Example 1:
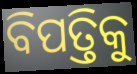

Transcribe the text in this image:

ବିପତ୍ତିକୁ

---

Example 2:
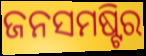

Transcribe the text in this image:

ଜନସମଷ୍ଟିର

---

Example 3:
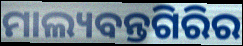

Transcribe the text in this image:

ମାଲ୍ୟବନ୍ତଗିରିର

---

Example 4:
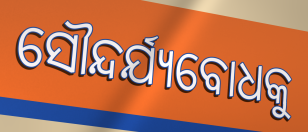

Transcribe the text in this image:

ସୌନ୍ଦର୍ଯ୍ୟବୋଧକୁ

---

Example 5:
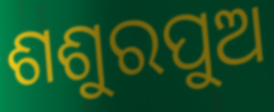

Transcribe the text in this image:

ଶଶୁରପୁଅ